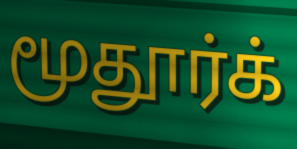
மூதூர்க்